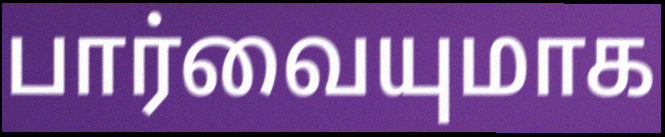
பார்வையுமாக